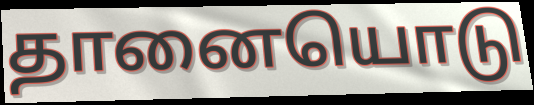
தானையொடு